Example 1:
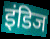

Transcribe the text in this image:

इंडिज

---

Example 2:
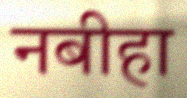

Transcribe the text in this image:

नबीहा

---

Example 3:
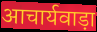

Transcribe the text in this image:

आचार्यवाड़ा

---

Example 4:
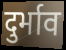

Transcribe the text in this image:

दुर्भाव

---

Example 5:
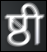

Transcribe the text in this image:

ष्ठी